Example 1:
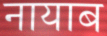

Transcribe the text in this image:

नायाब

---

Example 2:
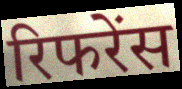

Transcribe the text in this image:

रिफरेंस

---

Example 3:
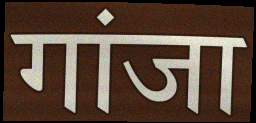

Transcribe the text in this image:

गांजा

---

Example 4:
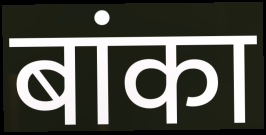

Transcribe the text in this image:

बांका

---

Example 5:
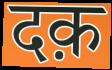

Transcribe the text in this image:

दक़